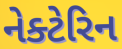
નેક્ટેરિન